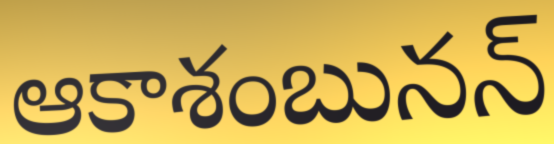
ఆకాశంబునన్